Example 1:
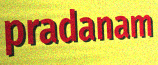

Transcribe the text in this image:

pradanam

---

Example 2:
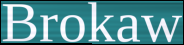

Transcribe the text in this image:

Brokaw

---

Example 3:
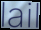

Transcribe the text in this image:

lail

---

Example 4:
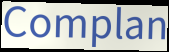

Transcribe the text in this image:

Complan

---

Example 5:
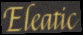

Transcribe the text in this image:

Eleatic